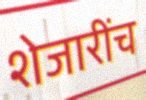
शेजारींच